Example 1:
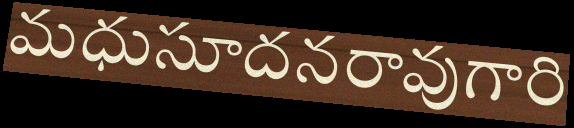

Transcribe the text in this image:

మధుసూదనరావుగారి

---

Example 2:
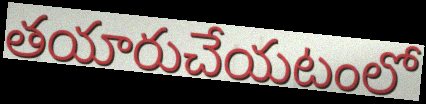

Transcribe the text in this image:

తయారుచేయటంలో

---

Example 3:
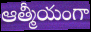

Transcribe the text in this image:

ఆత్మీయంగా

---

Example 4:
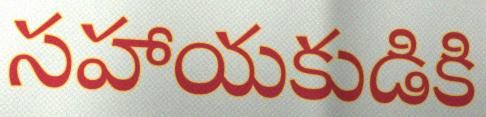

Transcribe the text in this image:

సహాయకుడికి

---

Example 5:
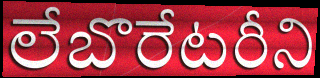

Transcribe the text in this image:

లేబొరేటరీని